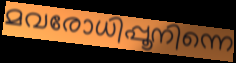
മവരോധിപ്പൂനിന്നെ